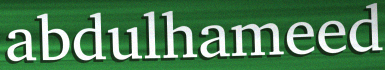
abdulhameed